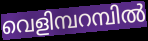
വെളിമ്പറമ്പിൽ